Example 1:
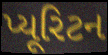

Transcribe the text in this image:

પ્યૂરિટન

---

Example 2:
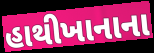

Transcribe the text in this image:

હાથીખાનાના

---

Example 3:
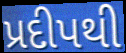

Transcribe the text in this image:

પ્રદીપથી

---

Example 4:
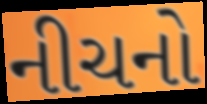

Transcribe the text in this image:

નીચનો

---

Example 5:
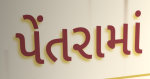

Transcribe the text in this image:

પેંતરામાં